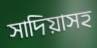
সাদিয়াসহ